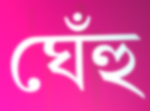
ঘেঁহু